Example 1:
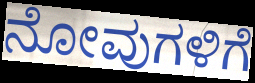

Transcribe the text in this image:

ನೋವುಗಳಿಗೆ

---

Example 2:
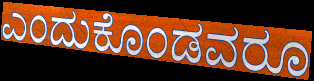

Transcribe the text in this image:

ಎಂದುಕೊಂಡವರೂ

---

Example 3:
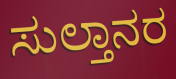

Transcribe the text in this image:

ಸುಲ್ತಾನರ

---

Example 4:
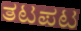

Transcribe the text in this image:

ತಟಪಟ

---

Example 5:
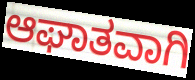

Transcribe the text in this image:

ಆಘಾತವಾಗಿ